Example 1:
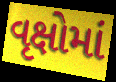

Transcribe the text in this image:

વૃક્ષોમાં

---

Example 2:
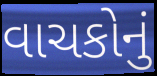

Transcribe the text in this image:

વાચકોનું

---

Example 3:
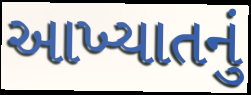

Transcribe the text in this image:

આખ્યાતનું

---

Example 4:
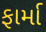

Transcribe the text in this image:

ફાર્મા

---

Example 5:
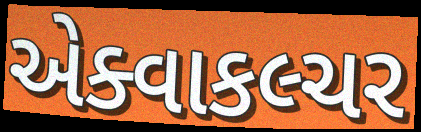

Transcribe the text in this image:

એક્વાકલ્ચર